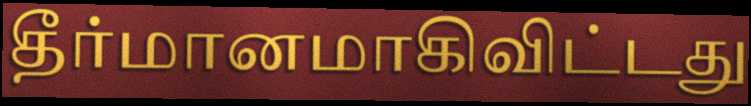
தீர்மானமாகிவிட்டது